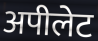
अपीलेट